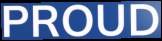
PROUD